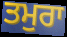
ਤਮੁਰਾ